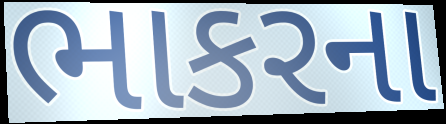
ભાકરના